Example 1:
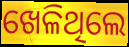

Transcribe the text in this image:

ଖେଳିଥିଲେ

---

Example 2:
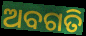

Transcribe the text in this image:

ଅବଗତି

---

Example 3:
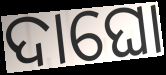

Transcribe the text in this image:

ଦାଘୋ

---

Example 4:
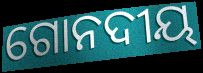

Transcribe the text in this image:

ଗୋନଦୀୟ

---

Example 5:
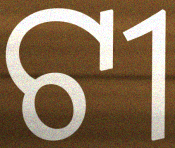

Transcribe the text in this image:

ଟୀ